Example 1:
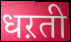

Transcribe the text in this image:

धऱती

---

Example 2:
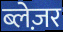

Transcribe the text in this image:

ब्लेज़र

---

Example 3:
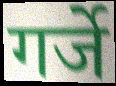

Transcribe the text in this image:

गर्जे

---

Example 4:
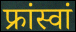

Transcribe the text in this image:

फ्रांस्वां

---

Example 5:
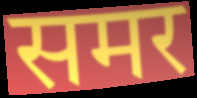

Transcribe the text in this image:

समर